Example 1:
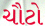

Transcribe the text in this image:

ચૌટો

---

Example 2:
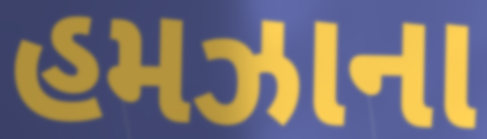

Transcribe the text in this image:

હમઝાના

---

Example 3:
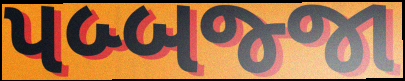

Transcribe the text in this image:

પબ્બજ્જા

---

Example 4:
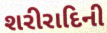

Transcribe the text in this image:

શરીરાદિની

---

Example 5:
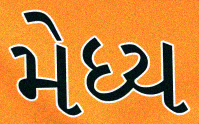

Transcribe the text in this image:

મેધ્ય